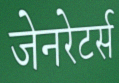
जेनरेटर्स